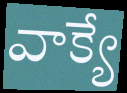
వాక్యే